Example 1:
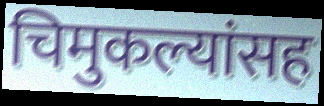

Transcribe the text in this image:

चिमुकल्यांसह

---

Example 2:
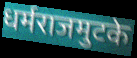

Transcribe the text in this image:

धर्मराजमुटके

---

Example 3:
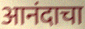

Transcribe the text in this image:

आनंदाचा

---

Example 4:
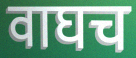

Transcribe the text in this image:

वाघच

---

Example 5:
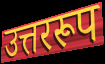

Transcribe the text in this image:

उत्तररूप